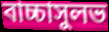
বাচ্চাসুলভ